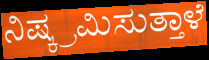
ನಿಷ್ಕ್ರಮಿಸುತ್ತಾಳೆ